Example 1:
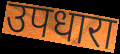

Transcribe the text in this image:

उपधारा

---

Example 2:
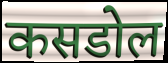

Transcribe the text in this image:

कसडोल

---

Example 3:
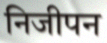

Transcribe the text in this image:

निजीपन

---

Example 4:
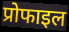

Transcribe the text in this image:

प्रोफाइल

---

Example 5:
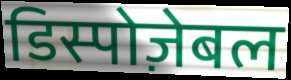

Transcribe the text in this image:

डिस्पोज़ेबल